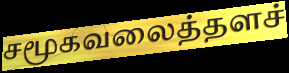
சமூகவலைத்தளச்